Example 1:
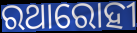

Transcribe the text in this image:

ରଥାରୋହୀ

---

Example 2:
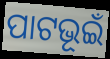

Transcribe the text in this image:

ପାଟଭୂଇଁ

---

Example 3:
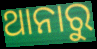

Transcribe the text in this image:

ଥାନାରୁ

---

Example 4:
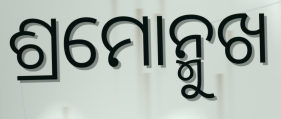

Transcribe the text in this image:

ଶ୍ରମୋନ୍ମୁଖ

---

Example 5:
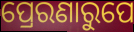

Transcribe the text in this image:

ପ୍ରେରଣାରୁପେ